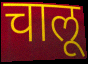
चालू